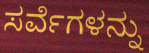
ಸರ್ವೆಗಳನ್ನು